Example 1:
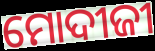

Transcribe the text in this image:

ମୋଦୀଜୀ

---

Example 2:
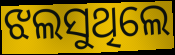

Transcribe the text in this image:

ଝଲସୁଥିଲେ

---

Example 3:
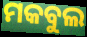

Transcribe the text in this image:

ମକବୁଲ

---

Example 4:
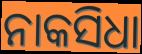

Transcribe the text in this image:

ନାକସିଧା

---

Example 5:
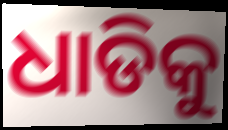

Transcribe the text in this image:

ଧାଡିକୁ